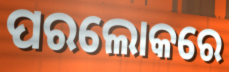
ପରଲୋକରେ